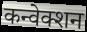
कन्वेक्शन